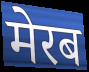
मेरब